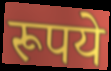
रूपये